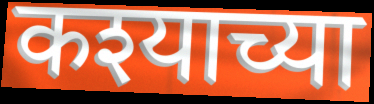
कश्याच्या